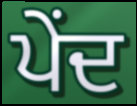
ਪੇਂਦ